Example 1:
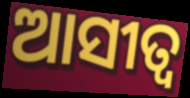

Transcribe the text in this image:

ଆସୀତ୍ବ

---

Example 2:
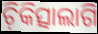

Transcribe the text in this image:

ଚ଼ିକିତ୍ସାଲାଗି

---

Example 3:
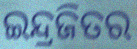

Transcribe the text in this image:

ଇନ୍ଦ୍ରଜିତର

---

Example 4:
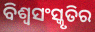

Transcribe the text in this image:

ବିଶ୍ୱସଂସ୍କୃତିର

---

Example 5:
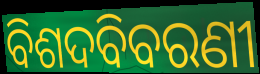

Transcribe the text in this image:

ବିଶଦବିବରଣୀ